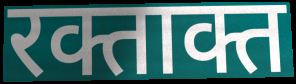
रक्ताक्त